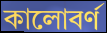
কালোবর্ণ